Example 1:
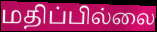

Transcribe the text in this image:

மதிப்பில்லை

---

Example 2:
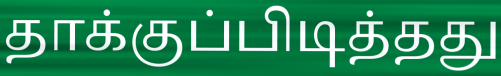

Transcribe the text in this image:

தாக்குப்பிடித்தது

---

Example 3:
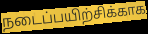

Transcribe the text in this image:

நடைப்பயிற்சிக்காக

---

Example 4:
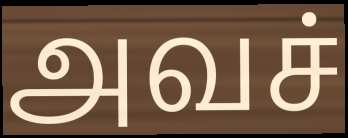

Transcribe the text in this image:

அவச்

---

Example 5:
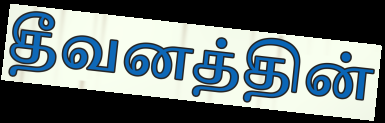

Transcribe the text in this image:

தீவனத்தின்